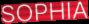
SOPHIA